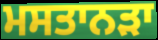
ਮਸਤਾਨੜਾ